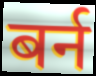
बर्न